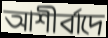
আশীর্বাদে